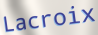
Lacroix